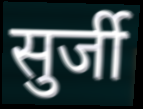
सुर्जी